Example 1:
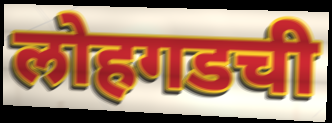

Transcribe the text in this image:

लोहगडची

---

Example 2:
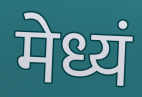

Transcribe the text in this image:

मेध्यं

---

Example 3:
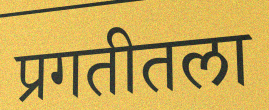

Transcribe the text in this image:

प्रगतीतला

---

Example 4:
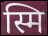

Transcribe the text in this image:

स्मि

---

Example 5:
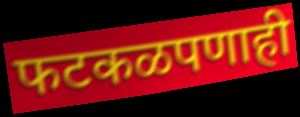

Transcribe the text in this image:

फटकळपणाही